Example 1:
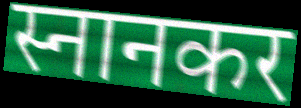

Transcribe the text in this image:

स्नानकर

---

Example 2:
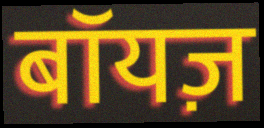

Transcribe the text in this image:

बॉयज़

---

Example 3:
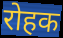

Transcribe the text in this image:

रोहक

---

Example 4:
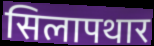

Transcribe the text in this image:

सिलापथार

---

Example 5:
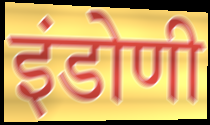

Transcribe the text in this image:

इंडोणी